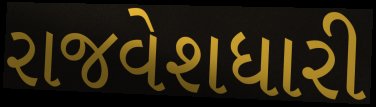
રાજવેશધારી